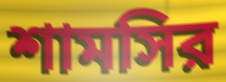
শামসির